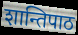
शान्तिपाठ